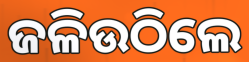
ଜଳିଉଠିଲେ